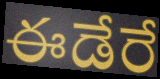
ఈడేరే